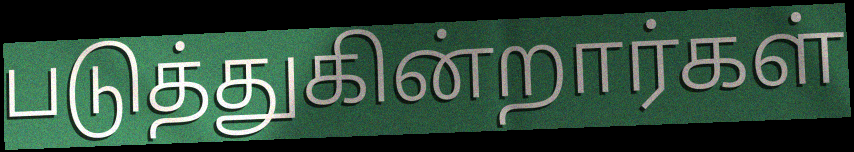
படுத்துகின்றார்கள்